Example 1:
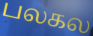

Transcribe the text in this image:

பலகல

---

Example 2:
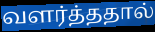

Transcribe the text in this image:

வளர்த்ததால்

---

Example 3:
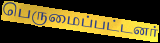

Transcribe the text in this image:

பெருமைப்பட்டனர்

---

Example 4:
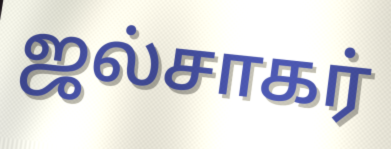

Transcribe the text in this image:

ஜல்சாகர்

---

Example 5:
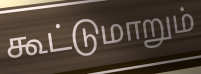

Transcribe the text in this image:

கூட்டுமாறும்